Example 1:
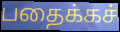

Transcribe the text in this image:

பதைக்கச்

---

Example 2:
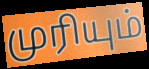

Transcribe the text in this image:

முரியும்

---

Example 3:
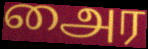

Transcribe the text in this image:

அைர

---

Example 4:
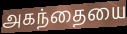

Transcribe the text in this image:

அகந்தையை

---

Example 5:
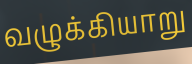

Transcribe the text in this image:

வழுக்கியாறு